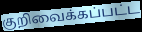
குறிவைக்கப்பட்ட